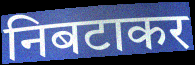
निबटाकर